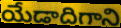
యేడాదిగాని